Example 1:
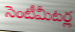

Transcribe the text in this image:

సెంటీమీటర్ల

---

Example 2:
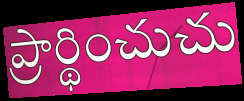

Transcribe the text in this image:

ప్రార్థించుచు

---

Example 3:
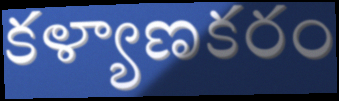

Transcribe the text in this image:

కళ్యాణకరం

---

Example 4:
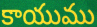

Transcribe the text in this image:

కాయుము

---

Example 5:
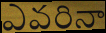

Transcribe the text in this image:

ఎవరినా